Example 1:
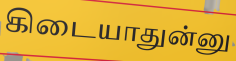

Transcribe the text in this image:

கிடையாதுன்னு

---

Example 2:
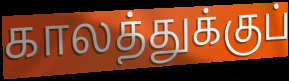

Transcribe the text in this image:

காலத்துக்குப்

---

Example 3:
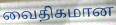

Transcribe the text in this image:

வைதிகமான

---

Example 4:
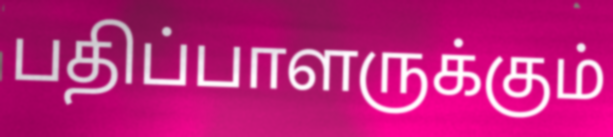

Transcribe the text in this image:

பதிப்பாளருக்கும்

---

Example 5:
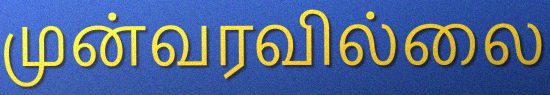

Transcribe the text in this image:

முன்வரவில்லை